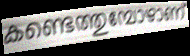
കണ്ടെത്തുമ്പോഴാണ്